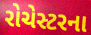
રોચેસ્ટરના